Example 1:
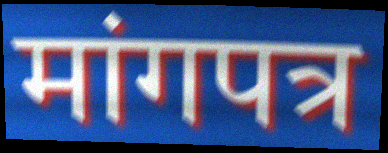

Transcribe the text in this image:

मांगपत्र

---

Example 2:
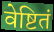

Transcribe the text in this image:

वेष्टितं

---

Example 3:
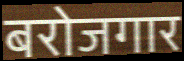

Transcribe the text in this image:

बरोजगार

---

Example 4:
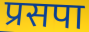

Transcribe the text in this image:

प्रसपा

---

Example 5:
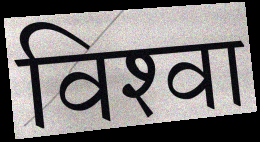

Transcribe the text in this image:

विश्‍वा